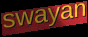
swayan